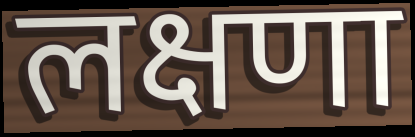
लक्षणा